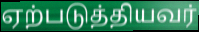
ஏற்படுத்தியவர்